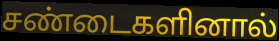
சண்டைகளினால்